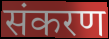
संकरण